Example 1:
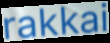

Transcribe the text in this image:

rakkai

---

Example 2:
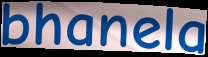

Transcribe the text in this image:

bhanela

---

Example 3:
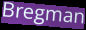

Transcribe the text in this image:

Bregman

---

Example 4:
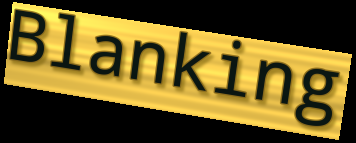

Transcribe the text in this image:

Blanking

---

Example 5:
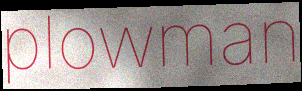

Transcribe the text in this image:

plowman